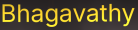
Bhagavathy